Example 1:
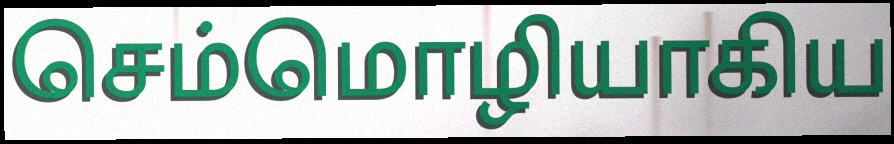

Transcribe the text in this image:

செம்மொழியாகிய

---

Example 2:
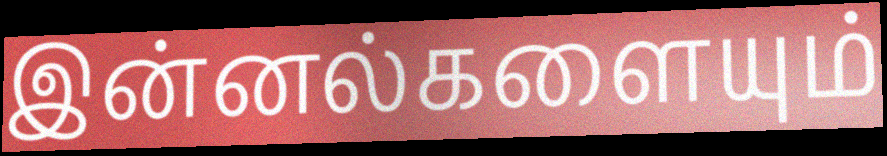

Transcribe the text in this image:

இன்னல்களையும்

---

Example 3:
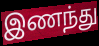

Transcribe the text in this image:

இணந்து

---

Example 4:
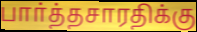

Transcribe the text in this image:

பார்த்தசாரதிக்கு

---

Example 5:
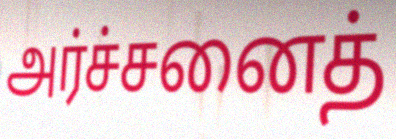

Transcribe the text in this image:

அர்ச்சனைத்